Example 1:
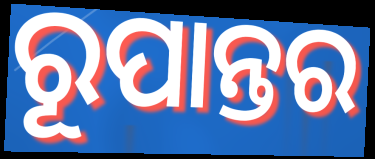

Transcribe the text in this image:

ରୂପାନ୍ତର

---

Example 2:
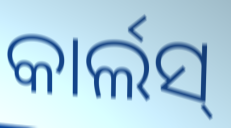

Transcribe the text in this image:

କାର୍ଲସ୍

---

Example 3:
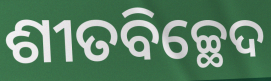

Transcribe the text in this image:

ଶୀତବିଚ୍ଛେଦ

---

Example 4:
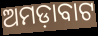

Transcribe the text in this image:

ଅମଡ଼ାବାଟ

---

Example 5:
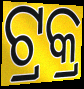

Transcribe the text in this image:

ଟ୍ରକ୍ର